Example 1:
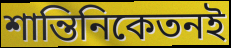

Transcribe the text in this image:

শান্তিনিকেতনই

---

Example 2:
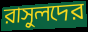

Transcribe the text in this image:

রাসুলদের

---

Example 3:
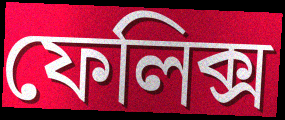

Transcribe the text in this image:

ফেলিক্স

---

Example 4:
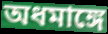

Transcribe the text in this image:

অধমাঙ্গে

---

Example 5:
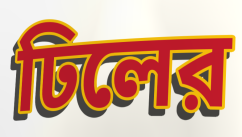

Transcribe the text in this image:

ঢিলের